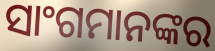
ସାଂଗମାନଙ୍କର